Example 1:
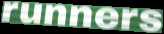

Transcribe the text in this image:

runners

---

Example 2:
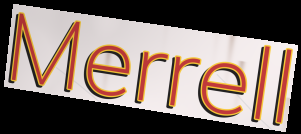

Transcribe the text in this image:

Merrell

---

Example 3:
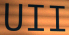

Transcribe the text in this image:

UII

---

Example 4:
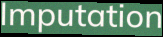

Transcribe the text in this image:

Imputation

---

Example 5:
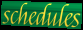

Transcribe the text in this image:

schedules